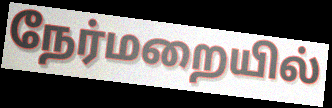
நேர்மறையில்